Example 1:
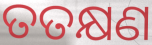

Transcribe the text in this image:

ତତକ୍ଷଣ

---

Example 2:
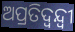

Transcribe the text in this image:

ଅପ୍ରତିଦ୍ବନ୍ଦ୍ବୀ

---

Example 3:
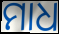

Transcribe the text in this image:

ମାଧ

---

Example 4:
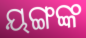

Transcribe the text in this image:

ୟଙ୍ଗଙ୍କ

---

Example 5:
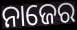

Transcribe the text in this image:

ନାଜେର